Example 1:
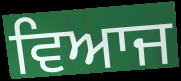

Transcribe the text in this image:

ਵਿਆਜ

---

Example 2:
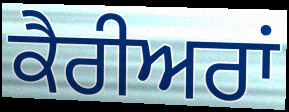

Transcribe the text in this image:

ਕੈਰੀਅਰਾਂ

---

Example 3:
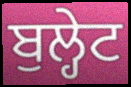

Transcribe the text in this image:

ਬੁਲ੍ਹੇਟ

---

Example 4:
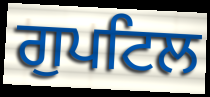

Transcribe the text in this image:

ਗੁਪਟਿਲ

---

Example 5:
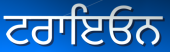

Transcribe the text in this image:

ਟਰਾਇਓਨ